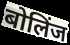
बोलिंज